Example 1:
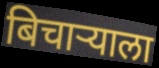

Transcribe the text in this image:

बिचार्‍याला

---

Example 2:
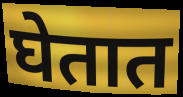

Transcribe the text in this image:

घेतात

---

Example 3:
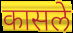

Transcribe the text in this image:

कासले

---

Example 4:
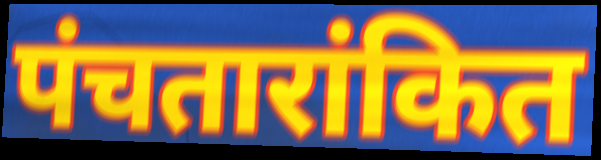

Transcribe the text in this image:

पंचतारांकित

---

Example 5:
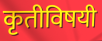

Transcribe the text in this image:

कृतीविषयी